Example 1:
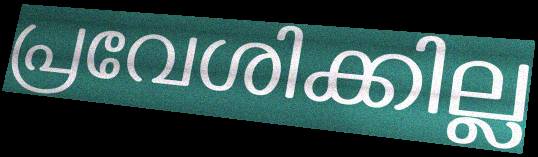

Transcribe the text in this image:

പ്രവേശിക്കില്ല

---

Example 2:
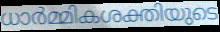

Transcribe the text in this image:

ധാർമ്മികശക്തിയുടെ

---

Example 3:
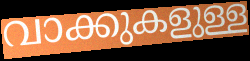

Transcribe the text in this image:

വാക്കുകളുള്ള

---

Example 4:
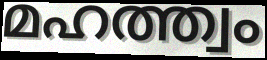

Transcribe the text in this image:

മഹത്ത്വം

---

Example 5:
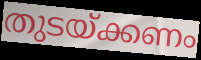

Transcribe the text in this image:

തുടയ്ക്കണം